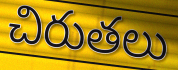
చిరుతలు